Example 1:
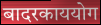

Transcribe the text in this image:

बादरकाययोग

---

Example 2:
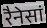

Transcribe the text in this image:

रैनेसां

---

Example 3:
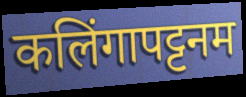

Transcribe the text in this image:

कलिंगापट्टनम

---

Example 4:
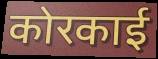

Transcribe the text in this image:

कोरकाई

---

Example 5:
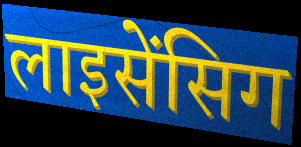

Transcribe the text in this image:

लाइसेंसिग